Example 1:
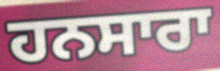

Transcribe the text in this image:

ਹਨਸਾਰਾ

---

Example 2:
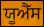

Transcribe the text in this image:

ਯੂਐੱਸ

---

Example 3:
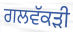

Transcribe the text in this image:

ਗਲਵੱਕਡ਼ੀ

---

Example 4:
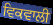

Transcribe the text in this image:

ਵਿਕਵਾਲੀ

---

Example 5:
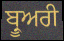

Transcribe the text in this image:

ਬ੍ਰੂਅਰੀ